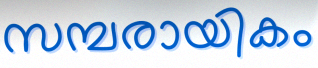
സമ്പരായികം